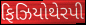
ફિઝિયોથેરપી